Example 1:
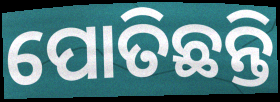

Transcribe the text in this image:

ପୋତିଛନ୍ତି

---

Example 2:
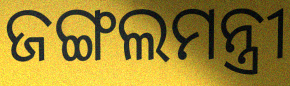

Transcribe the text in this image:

ଜଙ୍ଗଲମନ୍ତ୍ରୀ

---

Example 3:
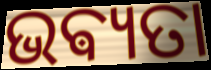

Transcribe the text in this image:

ଭଵ୍ୟତା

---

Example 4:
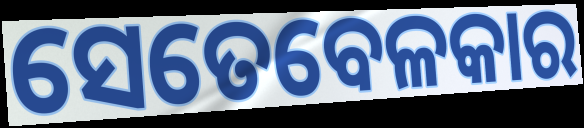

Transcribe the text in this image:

ସେତେବେଳକାର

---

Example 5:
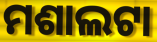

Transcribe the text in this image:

ମଶାଲଟା